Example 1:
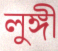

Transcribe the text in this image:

লুঙ্গী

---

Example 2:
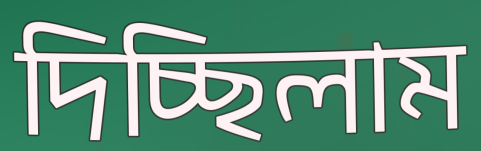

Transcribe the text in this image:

দিচ্ছিলাম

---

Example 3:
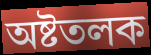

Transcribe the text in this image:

অষ্টতলক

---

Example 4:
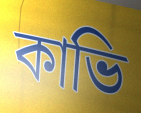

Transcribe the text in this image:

কাভি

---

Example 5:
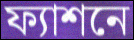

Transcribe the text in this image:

ফ্যাশনে